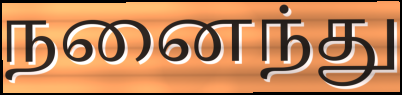
நனைந்து